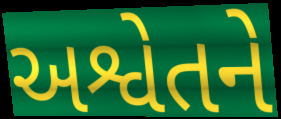
અશ્વેતને